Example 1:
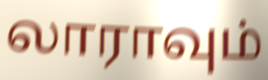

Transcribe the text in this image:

லாராவும்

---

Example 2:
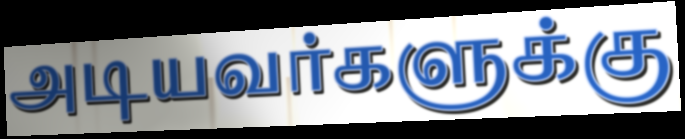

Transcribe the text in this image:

அடியவர்களுக்கு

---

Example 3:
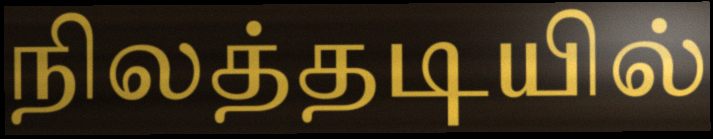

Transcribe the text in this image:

நிலத்தடியில்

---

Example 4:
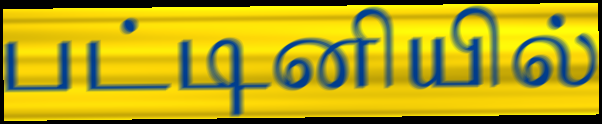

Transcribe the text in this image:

பட்டினியில்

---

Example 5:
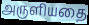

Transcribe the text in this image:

அருளியதை